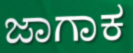
ಜಾಗಾಕ